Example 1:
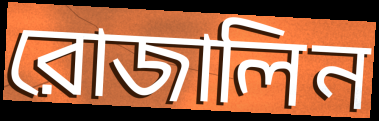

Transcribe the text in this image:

রোজালিন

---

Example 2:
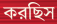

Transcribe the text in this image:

করছিস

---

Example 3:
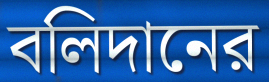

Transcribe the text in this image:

বলিদানের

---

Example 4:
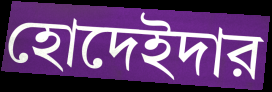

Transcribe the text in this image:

হোদেইদার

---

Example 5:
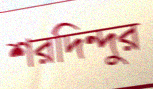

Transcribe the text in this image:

শরদিন্দুর